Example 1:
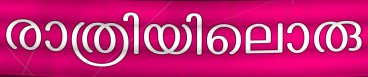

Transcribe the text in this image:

രാത്രിയിലൊരു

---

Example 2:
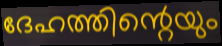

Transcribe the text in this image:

ദേഹത്തിന്റെയും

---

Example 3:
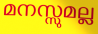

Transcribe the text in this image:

മനസ്സുമല്ല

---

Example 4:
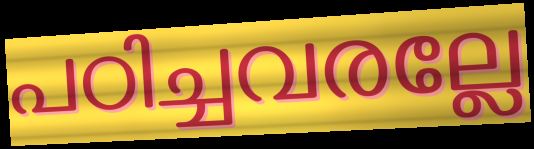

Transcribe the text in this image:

പഠിച്ചവരല്ലേ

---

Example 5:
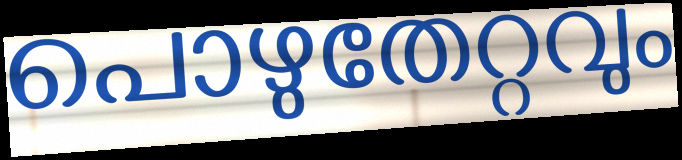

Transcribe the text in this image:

പൊഴുതേറ്റവും